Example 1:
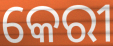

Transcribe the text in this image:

କେରୀ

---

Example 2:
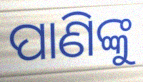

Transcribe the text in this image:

ପାଣିଙ୍କୁ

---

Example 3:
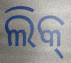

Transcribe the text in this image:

ଲିକ୍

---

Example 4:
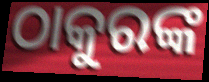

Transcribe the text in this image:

ଠାକୁରଙ୍କ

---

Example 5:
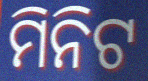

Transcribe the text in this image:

ମିନିଟ